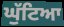
ਘੁੱਟਿਆ